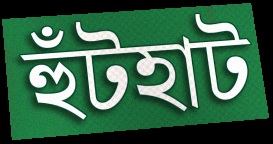
হুঁটহাট